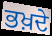
ਭਖ਼ਦੇ